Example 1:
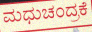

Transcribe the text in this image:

ಮಧುಚಂದ್ರಕೆ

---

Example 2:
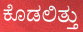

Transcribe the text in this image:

ಕೊಡಲಿತ್ತು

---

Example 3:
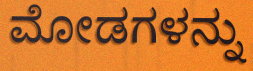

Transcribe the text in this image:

ಮೋಡಗಳನ್ನು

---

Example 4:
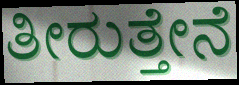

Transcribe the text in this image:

ತೀರುತ್ತೇನೆ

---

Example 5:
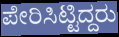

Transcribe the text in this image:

ಪೇರಿಸಿಟ್ಟಿದ್ದರು